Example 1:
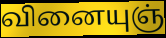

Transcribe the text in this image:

வினையுஞ்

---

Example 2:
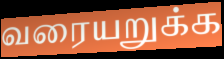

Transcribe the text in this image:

வரையறுக்க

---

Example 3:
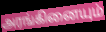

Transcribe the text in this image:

அரங்கினையும்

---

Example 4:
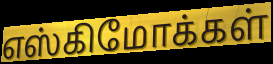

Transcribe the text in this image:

எஸ்கிமோக்கள்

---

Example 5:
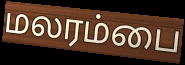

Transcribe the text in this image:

மலரம்பை